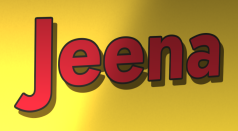
Jeena